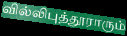
வில்லிபுத்தூராரும்